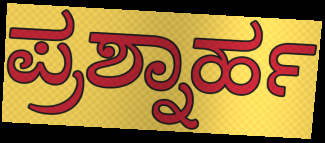
ಪ್ರಶ್ನಾರ್ಹ